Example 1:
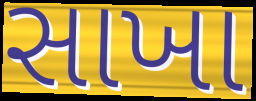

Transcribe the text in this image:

સાખા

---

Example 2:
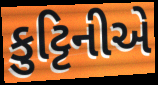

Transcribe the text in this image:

કુટ્ટિનીએ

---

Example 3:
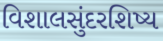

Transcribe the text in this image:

વિશાલસુંદરશિષ્ય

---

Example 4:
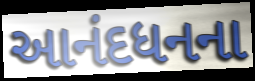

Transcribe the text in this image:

આનંદધનના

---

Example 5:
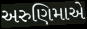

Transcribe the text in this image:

અરુણિમાએ